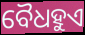
ବୈଧହୁଏ